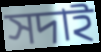
সদাই